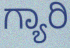
ಗ್ಯಾರಿ